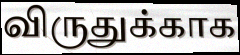
விருதுக்காக